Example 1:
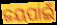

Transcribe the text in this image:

ଜୟପାଇଁ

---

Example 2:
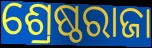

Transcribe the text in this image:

ଶ୍ରେଷ୍ଠରାଜା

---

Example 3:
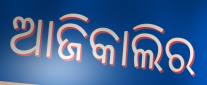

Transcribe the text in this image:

ଆଜିକାଲିର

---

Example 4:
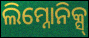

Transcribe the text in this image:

ଲିମ୍ନୋନିକ୍ସ୍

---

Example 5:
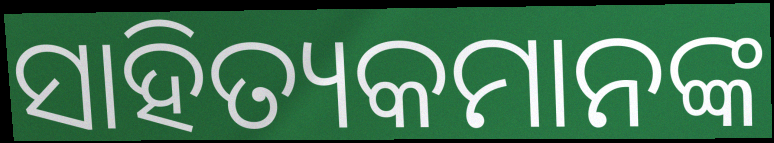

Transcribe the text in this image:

ସାହିତ୍ୟକମାନଙ୍କ